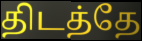
திடத்தே